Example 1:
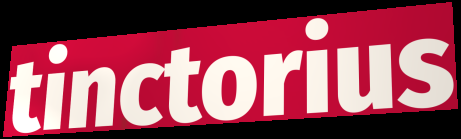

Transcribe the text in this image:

tinctorius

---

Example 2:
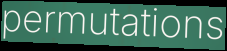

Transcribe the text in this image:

permutations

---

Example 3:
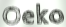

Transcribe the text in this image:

Oeko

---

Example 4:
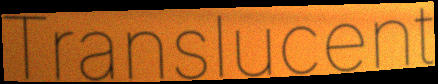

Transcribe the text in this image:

Translucent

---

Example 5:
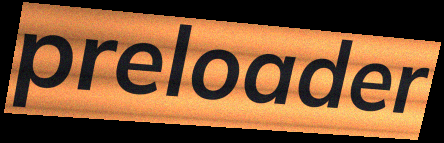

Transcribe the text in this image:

preloader